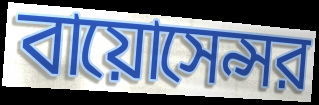
বায়োসেন্সর